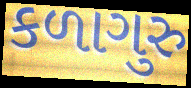
કળાગુરુ